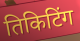
तिकिटिंग